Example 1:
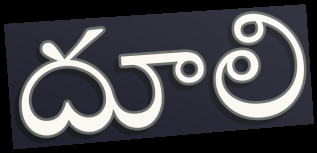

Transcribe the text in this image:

దూలి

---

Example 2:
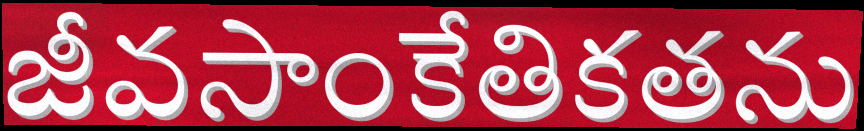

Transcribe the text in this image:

జీవసాంకేతికతను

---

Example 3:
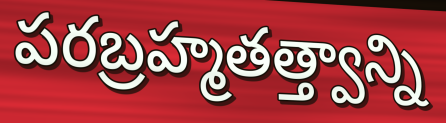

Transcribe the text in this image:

పరబ్రహ్మతత్త్వాన్ని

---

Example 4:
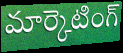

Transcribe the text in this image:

మార్కెటింగ్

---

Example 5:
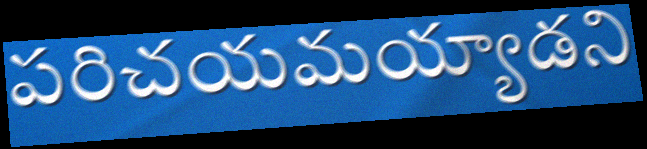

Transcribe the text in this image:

పరిచయమయ్యాడని